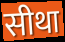
सीथा